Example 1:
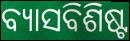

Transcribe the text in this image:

ବ୍ୟାସବିଶିଷ୍ଟ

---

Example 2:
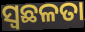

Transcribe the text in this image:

ସ୍ଵଛଳତା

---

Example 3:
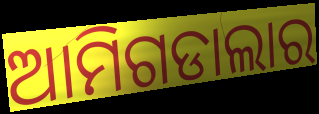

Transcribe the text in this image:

ଆମିଗଡାଲାର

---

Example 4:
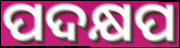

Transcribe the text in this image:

ପଦକ୍ଷପ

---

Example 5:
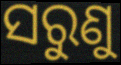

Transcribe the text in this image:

ସରୁଣୁ